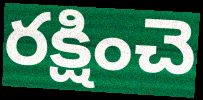
రక్షించె